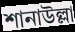
শানাউল্লা